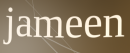
jameen